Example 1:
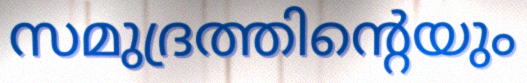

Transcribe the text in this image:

സമുദ്രത്തിന്റെയും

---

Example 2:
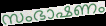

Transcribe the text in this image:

സംഭാഷണം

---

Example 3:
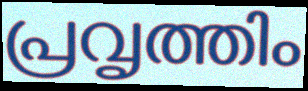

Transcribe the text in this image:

പ്രവൃത്തിം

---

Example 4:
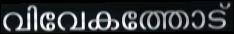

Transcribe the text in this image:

വിവേകത്തോട്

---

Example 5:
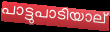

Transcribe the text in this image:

പാട്ടുപാടിയാല്